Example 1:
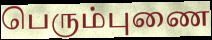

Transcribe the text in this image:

பெரும்புணை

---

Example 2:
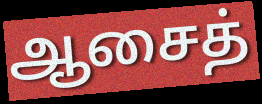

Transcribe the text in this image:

ஆசைத்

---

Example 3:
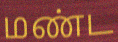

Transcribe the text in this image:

மண்ட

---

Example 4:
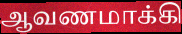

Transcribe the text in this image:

ஆவணமாக்கி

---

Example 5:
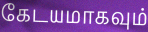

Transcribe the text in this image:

கேடயமாகவும்